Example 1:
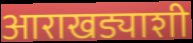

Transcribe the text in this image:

आराखड्याशी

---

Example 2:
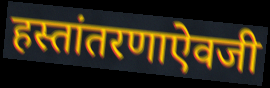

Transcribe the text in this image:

हस्तांतरणाऐवजी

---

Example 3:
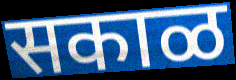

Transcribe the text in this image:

सकाळ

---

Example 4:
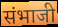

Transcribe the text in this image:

संभाजी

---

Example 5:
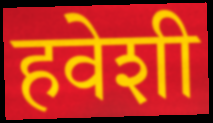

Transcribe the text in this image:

हवेशी